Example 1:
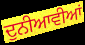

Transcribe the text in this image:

ਦੁਨੀਆਵੀਆਂ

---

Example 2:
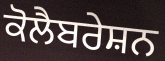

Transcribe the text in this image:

ਕੋਲੈਬਰੇਸ਼ਨ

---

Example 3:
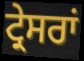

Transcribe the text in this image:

ਟ੍ਰੇਸਰਾਂ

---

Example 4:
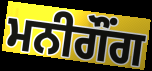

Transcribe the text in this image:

ਮਨੀਗੌਂਗ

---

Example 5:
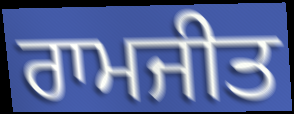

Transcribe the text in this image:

ਰਾਮਜੀਤ